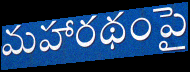
మహారథంపై